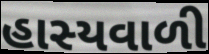
હાસ્યવાળી